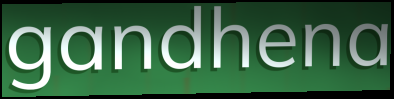
gandhena